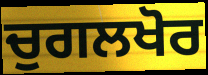
ਚੁਗਲਖੋਰ